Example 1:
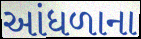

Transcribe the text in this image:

આંધળાના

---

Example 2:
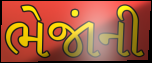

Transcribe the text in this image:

ભેજાંની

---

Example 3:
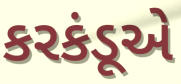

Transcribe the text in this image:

કરકંડૂએ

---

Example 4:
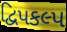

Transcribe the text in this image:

દ્વિપકલ્પ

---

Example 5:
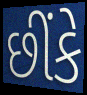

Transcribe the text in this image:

છીંકે